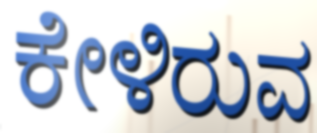
ಕೇಳಿರುವ